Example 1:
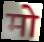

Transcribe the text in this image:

मो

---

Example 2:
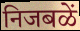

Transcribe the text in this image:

निजबळें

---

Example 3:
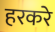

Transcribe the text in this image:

हरकरे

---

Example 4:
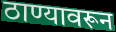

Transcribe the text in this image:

ठाण्यावरून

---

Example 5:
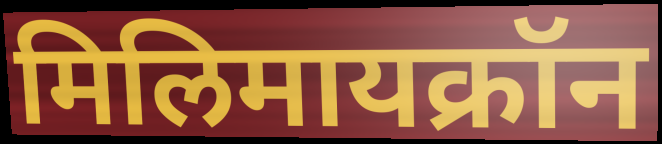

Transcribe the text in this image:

मिलिमायक्रॉन